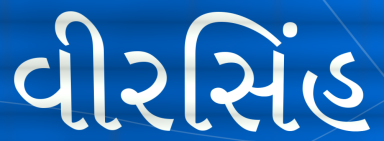
વીરસિંહ